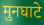
मुनघाटे